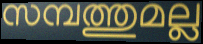
സമ്പത്തുമല്ല